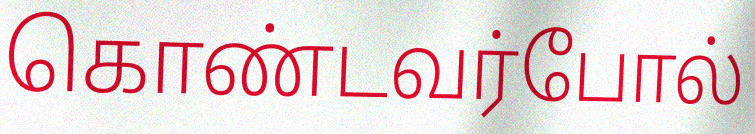
கொண்டவர்போல்